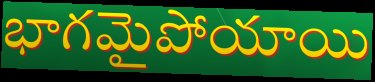
భాగమైపోయాయి